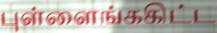
புள்ளைங்ககிட்ட